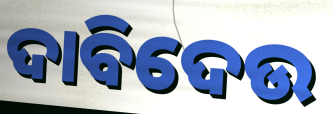
ଦାବିଦେଉ